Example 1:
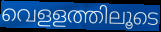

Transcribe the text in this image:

വെളളത്തിലൂടെ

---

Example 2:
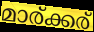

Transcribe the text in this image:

മാര്ക്കര്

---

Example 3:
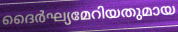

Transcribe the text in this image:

ദൈർഘ്യമേറിയതുമായ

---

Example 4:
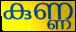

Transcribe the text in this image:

കുണ്ണ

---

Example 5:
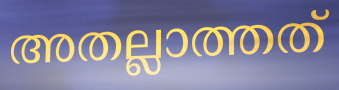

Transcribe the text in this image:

അതല്ലാത്തത്